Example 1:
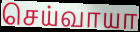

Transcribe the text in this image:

செய்வாயா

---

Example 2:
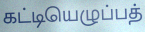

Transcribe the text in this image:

கட்டியெழுப்பத்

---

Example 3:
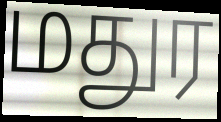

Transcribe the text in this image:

மதுர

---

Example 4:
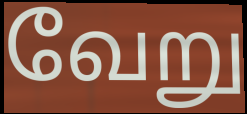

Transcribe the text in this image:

வேறு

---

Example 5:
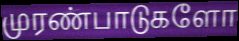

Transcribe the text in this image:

முரண்பாடுகளோ